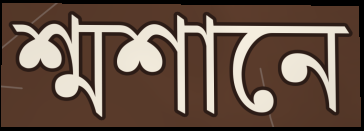
শ্মশানে